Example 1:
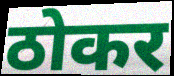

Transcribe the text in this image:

ठोकर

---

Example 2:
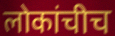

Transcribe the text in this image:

लोकांचीच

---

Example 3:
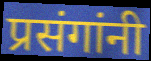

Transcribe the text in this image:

प्रसंगांनी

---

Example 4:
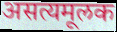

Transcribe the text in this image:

असत्यमूलक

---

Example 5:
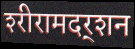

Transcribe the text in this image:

श्रीरामदर्शन